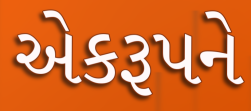
એકરૂપને